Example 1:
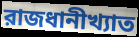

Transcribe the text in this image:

রাজধানীখ্যাত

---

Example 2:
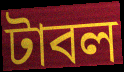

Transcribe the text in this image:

টাবল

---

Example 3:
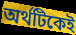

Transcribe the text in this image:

অর্থটিকেই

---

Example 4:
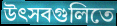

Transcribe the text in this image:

উৎসবগুলিতে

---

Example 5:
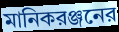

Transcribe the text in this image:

মানিকরঞ্জনের